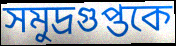
সমুদ্রগুপ্তকে